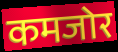
कमजोर